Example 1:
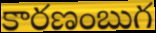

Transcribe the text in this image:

కారణంబుగ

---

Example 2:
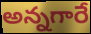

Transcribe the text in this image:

అన్నగారే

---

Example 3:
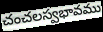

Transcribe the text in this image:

చంచలస్వభావము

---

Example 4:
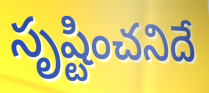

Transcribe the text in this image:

సృష్టించనిదే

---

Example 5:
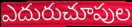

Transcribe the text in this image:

ఎదురుచూపుల